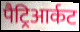
पैट्रिआर्कट